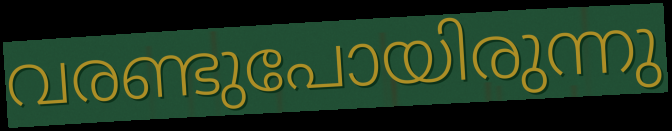
വരണ്ടുപോയിരുന്നു